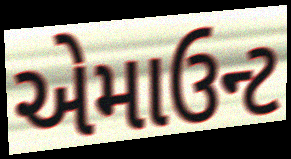
એમાઉન્ટ